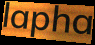
lapha